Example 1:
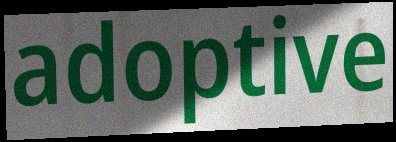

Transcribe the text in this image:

adoptive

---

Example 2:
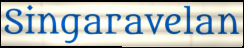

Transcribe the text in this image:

Singaravelan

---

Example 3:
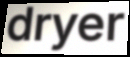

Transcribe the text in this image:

dryer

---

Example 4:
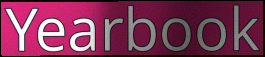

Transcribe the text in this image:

Yearbook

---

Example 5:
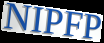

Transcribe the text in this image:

NIPFP